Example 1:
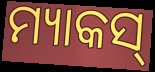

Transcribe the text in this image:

ମ୍ୟାକସ୍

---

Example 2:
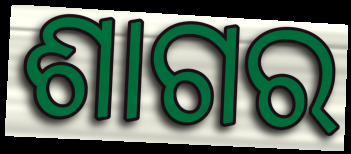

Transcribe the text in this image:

ଶାଗର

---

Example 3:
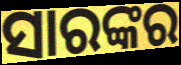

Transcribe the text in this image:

ସାରଙ୍କର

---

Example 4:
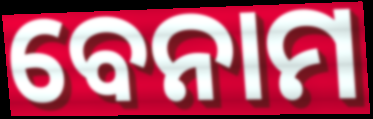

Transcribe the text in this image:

ବେନାମ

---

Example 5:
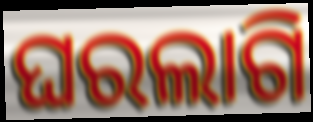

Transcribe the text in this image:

ଘରଲାଗି